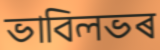
ভাবিলভৰ